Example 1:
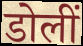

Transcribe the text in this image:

डोलीं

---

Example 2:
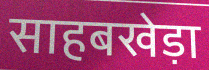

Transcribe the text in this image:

साहबखेड़ा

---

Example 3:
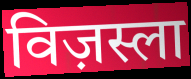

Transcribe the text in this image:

विज़स्ला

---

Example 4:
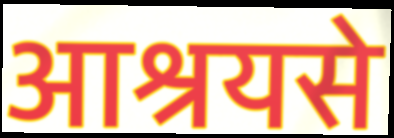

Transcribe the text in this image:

आश्रयसे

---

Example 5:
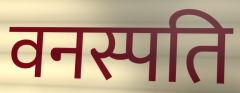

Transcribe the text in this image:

वनस्पति